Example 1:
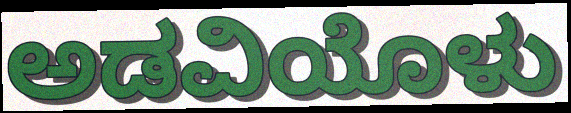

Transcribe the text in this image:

ಅಡವಿಯೊಳು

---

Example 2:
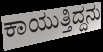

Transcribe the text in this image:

ಕಾಯುತ್ತಿದ್ದನು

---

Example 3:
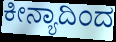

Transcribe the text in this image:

ಕೀನ್ಯಾದಿಂದ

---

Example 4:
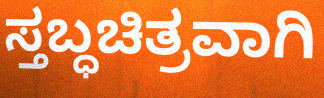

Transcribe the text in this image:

ಸ್ತಬ್ಧಚಿತ್ರವಾಗಿ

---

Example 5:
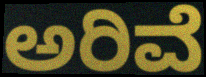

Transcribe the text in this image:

ಅರಿವೆ